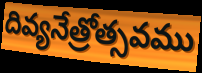
దివ్యనేత్రోత్సవము